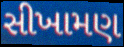
સીખામણ